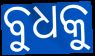
ବୁଧକୁ